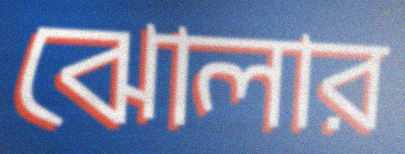
ঝোলার